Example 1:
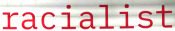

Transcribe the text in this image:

racialist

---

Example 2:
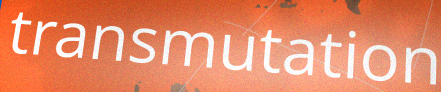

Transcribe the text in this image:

transmutation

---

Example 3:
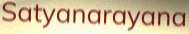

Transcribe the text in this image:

Satyanarayana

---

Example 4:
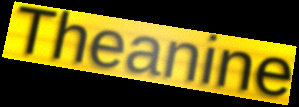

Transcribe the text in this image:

Theanine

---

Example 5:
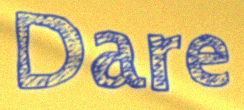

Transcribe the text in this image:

Dare